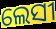
ଲେସୀ